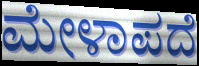
ಮೇಳಾಪದೆ